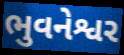
ભુવનેશ્વર